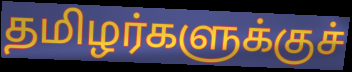
தமிழர்களுக்குச்